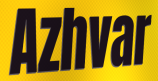
Azhvar